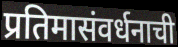
प्रतिमासंवर्धनाची